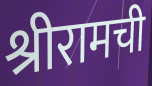
श्रीरामची